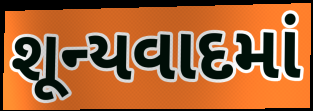
શૂન્યવાદમાં